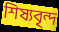
শিষ্যবৃন্দ